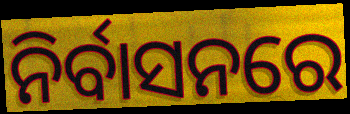
ନିର୍ବାସନରେ